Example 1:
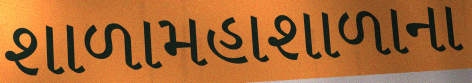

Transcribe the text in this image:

શાળામહાશાળાના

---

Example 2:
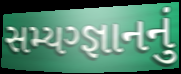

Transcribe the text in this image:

સમ્યગ્જ્ઞાનનું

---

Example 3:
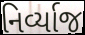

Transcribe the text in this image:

નિર્વ્યાજ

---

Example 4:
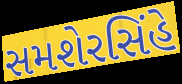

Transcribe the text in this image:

સમશેરસિંહે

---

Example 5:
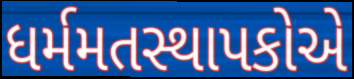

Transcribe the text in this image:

ધર્મમતસ્થાપકોએ